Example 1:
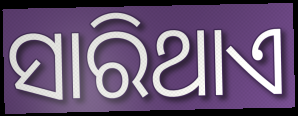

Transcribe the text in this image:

ସାରିଥାଏ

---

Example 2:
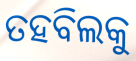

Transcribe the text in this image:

ତହବିଲକୁ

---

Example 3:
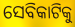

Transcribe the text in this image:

ସେବିକାଟିକୁ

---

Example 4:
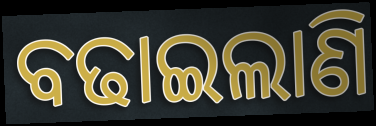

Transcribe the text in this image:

ବଢାଇଲାଣି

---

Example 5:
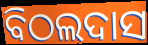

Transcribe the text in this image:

ବିଠଲଦାସ